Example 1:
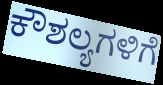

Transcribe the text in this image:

ಕೌಶಲ್ಯಗಳಿಗೆ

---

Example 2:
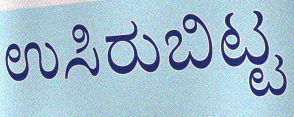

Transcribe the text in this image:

ಉಸಿರುಬಿಟ್ಟ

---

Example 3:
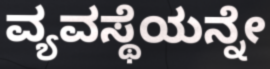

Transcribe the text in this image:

ವ್ಯವಸ್ಥೆಯನ್ನೇ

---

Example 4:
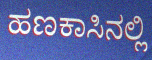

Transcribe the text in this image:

ಹಣಕಾಸಿನಲ್ಲಿ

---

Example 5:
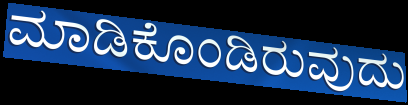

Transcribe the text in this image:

ಮಾಡಿಕೊಂಡಿರುವುದು